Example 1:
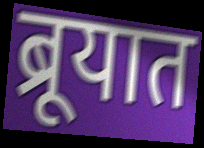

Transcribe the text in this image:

ब्रूयात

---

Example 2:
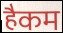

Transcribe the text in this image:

हैकम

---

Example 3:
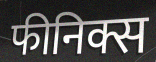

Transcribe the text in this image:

फीनिक्स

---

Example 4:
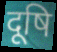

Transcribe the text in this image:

दूषि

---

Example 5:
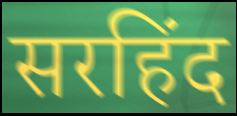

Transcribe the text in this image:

सरहिंद